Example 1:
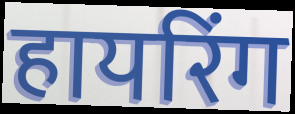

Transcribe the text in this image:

हायरिंग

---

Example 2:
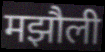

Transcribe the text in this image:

मझौली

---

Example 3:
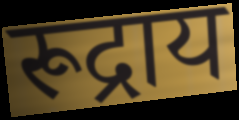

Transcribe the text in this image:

रूद्राय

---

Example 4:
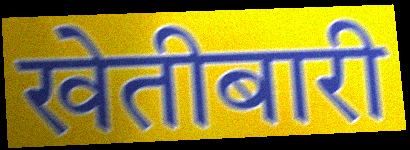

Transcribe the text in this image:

खेतीबारी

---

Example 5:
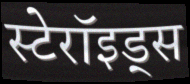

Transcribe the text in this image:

स्टेरॉइड्स